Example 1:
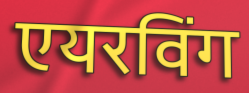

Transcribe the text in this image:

एयरविंग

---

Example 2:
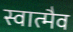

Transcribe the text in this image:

स्वात्मैव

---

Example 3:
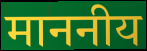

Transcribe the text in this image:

माननीय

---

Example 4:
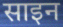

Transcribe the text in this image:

साइन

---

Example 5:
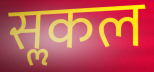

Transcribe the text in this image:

सॢकल